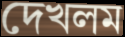
দেখলম